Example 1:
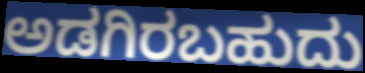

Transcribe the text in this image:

ಅಡಗಿರಬಹುದು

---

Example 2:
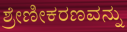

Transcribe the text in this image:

ಶ್ರೇಣೀಕರಣವನ್ನು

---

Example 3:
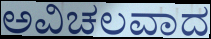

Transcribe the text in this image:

ಅವಿಚಲವಾದ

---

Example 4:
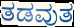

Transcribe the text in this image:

ತಡವುತ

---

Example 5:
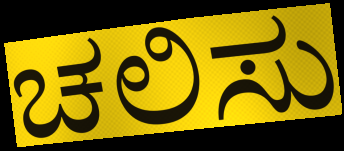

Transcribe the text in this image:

ಚಲಿಸು